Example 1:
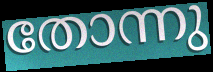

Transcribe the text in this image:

തോന്നു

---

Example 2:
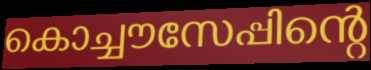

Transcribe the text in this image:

കൊച്ചൗസേപ്പിന്റെ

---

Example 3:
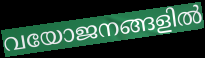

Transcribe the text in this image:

വയോജനങ്ങളിൽ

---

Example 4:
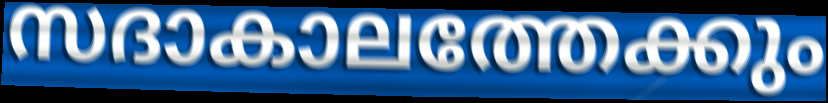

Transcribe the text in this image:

സദാകാലത്തേക്കും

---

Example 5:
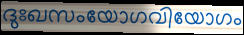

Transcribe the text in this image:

ദുഃഖസംയോഗവിയോഗം